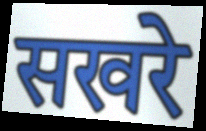
सखरे